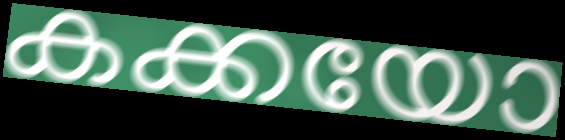
കക്കയോ